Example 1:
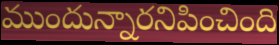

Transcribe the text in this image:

ముందున్నారనిపించింది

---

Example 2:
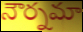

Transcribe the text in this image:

నౌర్నమా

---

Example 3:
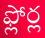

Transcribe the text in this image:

ఫ్లోర్ల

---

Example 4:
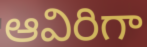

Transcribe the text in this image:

ఆవిరిగా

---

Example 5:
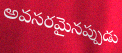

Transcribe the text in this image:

అవసరమైనప్పుడు